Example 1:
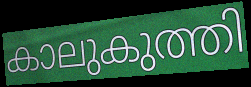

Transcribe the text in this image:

കാലുകുത്തി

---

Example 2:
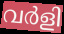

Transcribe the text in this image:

വർളി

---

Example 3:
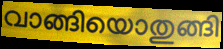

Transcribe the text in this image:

വാങ്ങിയൊതുങ്ങി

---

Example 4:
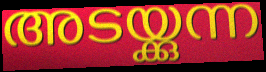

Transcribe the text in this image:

അടയ്ക്കുന്ന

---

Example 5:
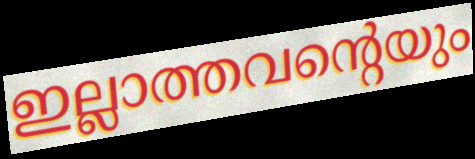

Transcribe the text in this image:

ഇല്ലാത്തവന്റെയും